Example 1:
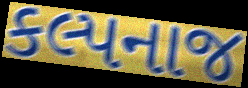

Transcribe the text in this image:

કલ્પનાજ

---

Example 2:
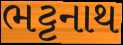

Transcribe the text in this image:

ભટ્ટનાથ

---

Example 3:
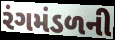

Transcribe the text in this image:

રંગમંડળની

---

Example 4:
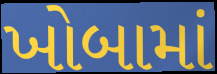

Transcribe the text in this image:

ખોબામાં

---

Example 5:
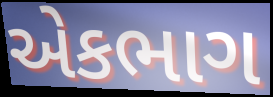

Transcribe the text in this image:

એકભાગ